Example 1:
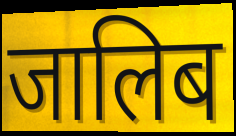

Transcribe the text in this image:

जालिब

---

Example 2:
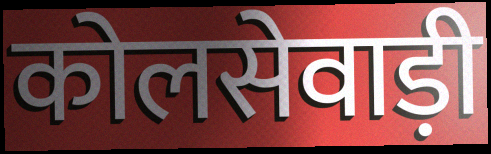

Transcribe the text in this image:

कोलसेवाड़ी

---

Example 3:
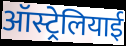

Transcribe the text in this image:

ऑस्‍ट्रेलियाई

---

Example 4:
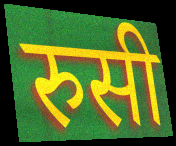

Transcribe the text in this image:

रुसी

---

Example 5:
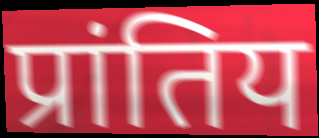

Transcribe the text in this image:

प्रांतिय